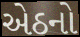
એઠનો